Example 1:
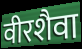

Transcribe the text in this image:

वीरशैवा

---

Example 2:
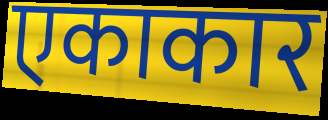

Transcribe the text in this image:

एकाकार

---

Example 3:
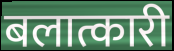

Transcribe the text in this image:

बलात्कारी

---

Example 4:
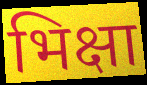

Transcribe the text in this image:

भिक्षा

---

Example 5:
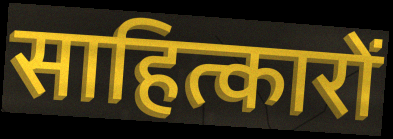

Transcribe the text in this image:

साहित्कारों